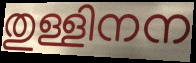
തുള്ളിനന